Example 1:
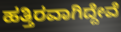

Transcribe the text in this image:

ಹತ್ತಿರವಾಗಿದ್ದೇವೆ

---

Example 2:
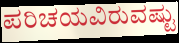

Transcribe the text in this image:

ಪರಿಚಯವಿರುವಷ್ಟು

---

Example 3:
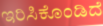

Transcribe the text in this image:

ಇರಿಸಿಕೊಂಡಿದೆ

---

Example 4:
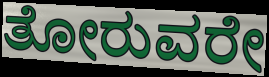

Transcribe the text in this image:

ತೋರುವರೇ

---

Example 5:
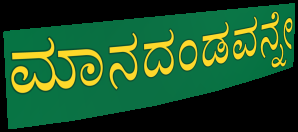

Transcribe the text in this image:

ಮಾನದಂಡವನ್ನೇ